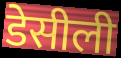
डेसीली